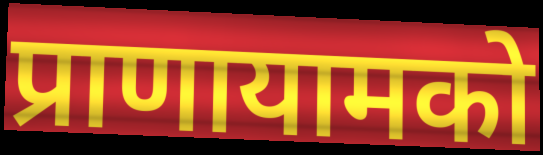
प्राणायामको